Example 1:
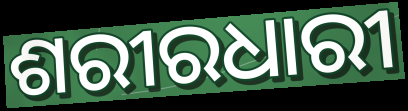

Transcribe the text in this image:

ଶରୀରଧାରୀ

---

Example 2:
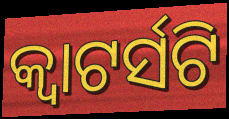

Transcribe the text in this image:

କ୍ୱାଟର୍ସଟି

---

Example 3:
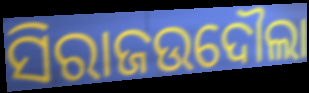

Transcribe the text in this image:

ସିରାଜଉଦୌଲା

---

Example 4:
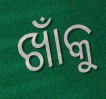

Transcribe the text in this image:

ଖାଁକୁ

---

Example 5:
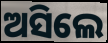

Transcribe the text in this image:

ଅସିଲେ